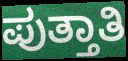
ಪುತ್ತಾತಿ